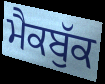
ਮੈਕਬੁੱਕ